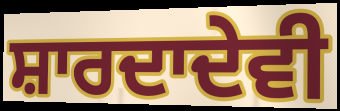
ਸ਼ਾਰਦਾਦੇਵੀ